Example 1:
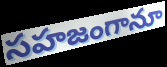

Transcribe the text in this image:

సహజంగానూ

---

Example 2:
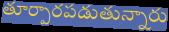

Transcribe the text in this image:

తూర్పారపడుతున్నారు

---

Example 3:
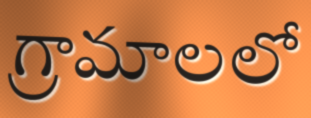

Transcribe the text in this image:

గ్రామాలలో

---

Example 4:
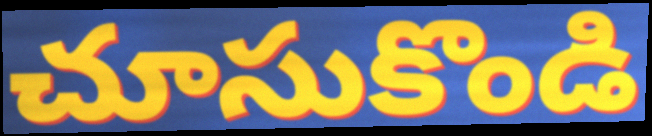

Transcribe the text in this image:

చూసుకొండి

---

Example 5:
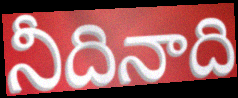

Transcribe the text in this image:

నీదినాది